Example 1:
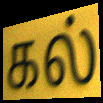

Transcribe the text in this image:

கல்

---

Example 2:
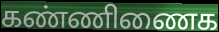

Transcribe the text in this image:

கண்ணிணைக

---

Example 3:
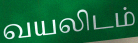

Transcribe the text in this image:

வயலிடம்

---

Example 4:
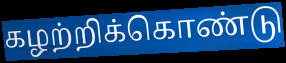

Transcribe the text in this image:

கழற்றிக்கொண்டு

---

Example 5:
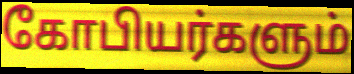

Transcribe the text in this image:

கோபியர்களும்